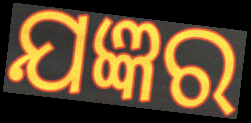
ଯଜ୍ଞର